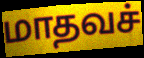
மாதவச்